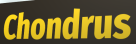
Chondrus